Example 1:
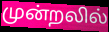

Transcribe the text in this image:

முன்றலில்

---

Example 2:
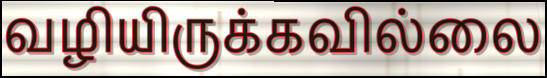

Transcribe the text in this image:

வழியிருக்கவில்லை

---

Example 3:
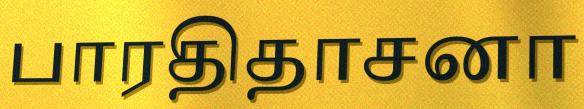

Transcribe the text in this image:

பாரதிதாசனா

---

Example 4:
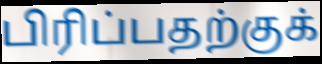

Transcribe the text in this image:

பிரிப்பதற்குக்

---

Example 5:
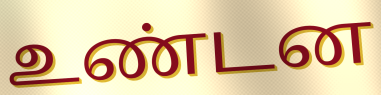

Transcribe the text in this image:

உண்டன